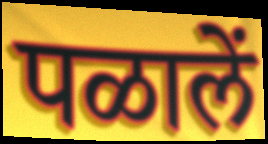
पळालें